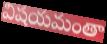
విషయమంతా